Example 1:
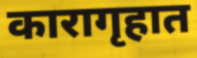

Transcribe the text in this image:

कारागृहात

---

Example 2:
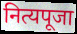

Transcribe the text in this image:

नित्यपूजा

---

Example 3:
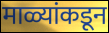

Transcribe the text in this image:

माळ्यांकडून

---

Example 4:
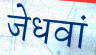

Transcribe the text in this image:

जेधवां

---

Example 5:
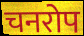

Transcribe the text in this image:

चनरोप